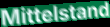
Mittelstand